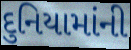
દુનિયામાંની